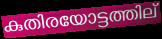
കുതിരയോട്ടത്തില്